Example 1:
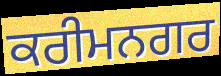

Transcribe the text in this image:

ਕਰੀਮਨਗਰ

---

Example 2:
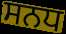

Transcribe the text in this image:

ਸਨਧ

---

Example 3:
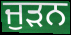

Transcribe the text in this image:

ਜੁਡ਼ਨ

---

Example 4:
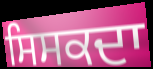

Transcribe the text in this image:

ਸਿਸਕਦਾ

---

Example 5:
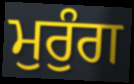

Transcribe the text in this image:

ਮੁਰੁੰਗ